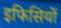
इफिसियों